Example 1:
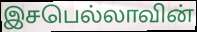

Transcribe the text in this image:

இசபெல்லாவின்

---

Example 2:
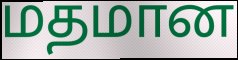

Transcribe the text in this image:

மதமான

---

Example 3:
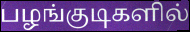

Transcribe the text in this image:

பழங்குடிகளில்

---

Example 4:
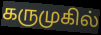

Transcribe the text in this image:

கருமுகில்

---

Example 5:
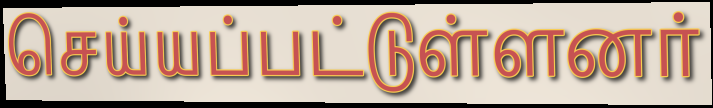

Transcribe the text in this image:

செய்யப்பட்டுள்ளனர்